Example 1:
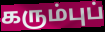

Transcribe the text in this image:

கரும்புப்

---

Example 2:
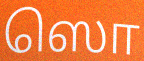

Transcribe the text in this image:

ஸொ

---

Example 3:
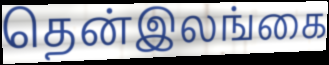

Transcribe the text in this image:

தென்இலங்கை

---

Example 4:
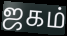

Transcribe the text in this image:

ஜகம்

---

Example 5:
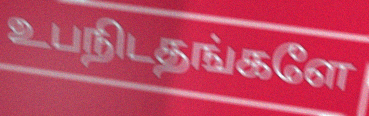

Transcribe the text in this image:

உபநிடதங்களே